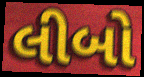
લીબો